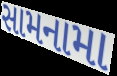
સામનામા